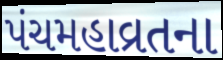
પંચમહાવ્રતના